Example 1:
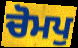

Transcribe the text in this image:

ਚੋਮਪੁ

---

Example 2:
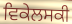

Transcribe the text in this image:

ਵਿਕੇਲਸਕੀ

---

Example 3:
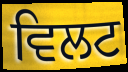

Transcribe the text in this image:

ਵਿਲਟ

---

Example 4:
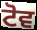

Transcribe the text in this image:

ਟੋਵ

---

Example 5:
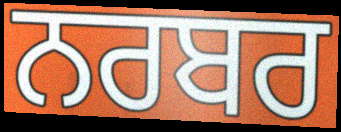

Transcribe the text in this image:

ਨਰਬਰ